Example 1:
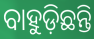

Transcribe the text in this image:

ବାହୁଡ଼ିଛନ୍ତି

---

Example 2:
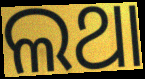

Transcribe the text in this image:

ଲଥା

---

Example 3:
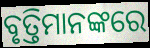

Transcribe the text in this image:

ବୃତ୍ତିମାନଙ୍କରେ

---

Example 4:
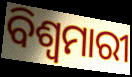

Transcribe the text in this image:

ବିଶ୍ୱମାରୀ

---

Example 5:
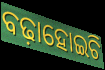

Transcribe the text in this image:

ବଢ଼ାହୋଇଚି